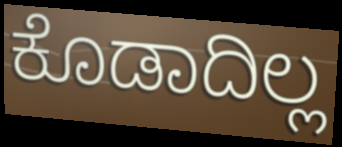
ಕೊಡಾದಿಲ್ಲ